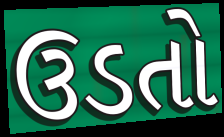
ઉડતો